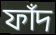
ফাঁদ